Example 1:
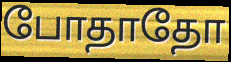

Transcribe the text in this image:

போதாதோ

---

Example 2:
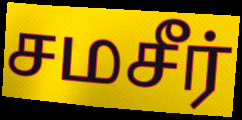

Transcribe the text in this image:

சமசீர்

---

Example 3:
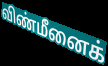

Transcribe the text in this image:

விண்மீனைக்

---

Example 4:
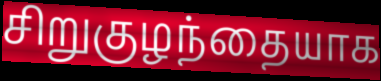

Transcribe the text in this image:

சிறுகுழந்தையாக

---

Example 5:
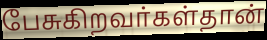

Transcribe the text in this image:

பேசுகிறவர்கள்தான்